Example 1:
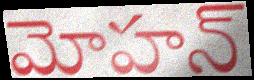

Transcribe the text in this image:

మోహన్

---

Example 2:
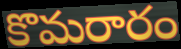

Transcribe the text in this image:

కొమరారం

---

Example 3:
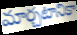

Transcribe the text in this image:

మార్చటానికా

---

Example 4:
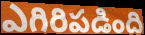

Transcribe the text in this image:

ఎగిరిపడింది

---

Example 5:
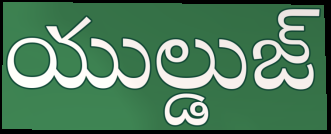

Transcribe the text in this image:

యుల్డుజ్